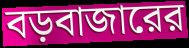
বড়বাজারের